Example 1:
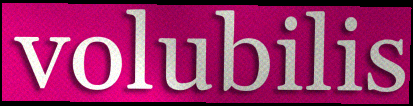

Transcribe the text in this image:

volubilis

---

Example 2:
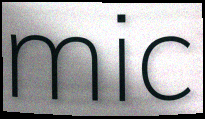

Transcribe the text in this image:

mic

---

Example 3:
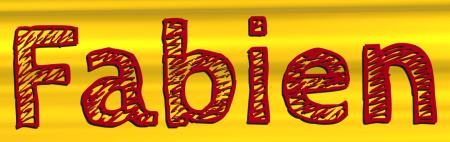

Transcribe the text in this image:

Fabien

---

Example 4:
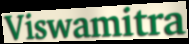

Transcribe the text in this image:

Viswamitra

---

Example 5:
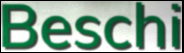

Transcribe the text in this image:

Beschi